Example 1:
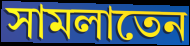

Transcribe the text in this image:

সামলাতেন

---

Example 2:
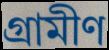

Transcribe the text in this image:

গ্রামীণ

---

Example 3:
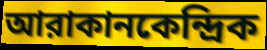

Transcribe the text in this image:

আরাকানকেন্দ্রিক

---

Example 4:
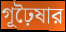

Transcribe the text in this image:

গূঢ়ৈষার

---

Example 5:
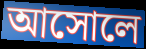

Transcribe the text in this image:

আসোলে